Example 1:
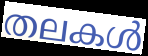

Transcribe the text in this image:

തലകൾ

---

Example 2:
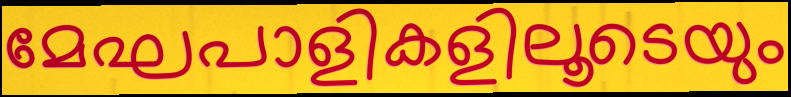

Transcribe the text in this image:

മേഘപാളികളിലൂടെയും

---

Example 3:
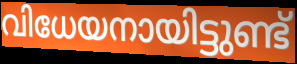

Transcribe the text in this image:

വിധേയനായിട്ടുണ്ട്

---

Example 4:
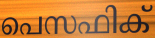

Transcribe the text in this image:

പെസഫിക്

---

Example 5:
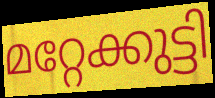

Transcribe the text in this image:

മറ്റേക്കുട്ടി